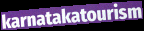
karnatakatourism